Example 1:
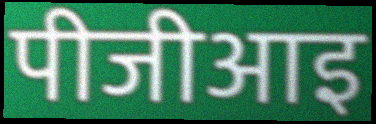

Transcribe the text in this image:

पीजीआइ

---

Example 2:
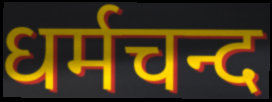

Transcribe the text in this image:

धर्मचन्द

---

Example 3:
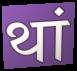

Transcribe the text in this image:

थां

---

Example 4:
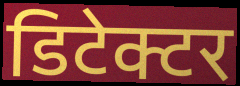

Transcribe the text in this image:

डिटेक्टर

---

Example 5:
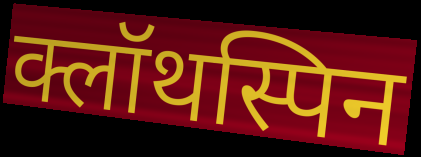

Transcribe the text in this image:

क्लॉथस्पिन